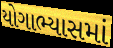
યોગાભ્યાસમાં